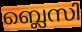
ബ്ലെസി